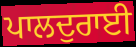
ਪਾਲਦੁਰਾਈ